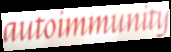
autoimmunity